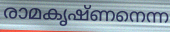
രാമകൃഷ്ണനെന്ന